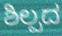
ಶಿಲ್ಪದ